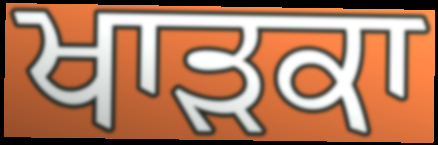
ਖਾੜਕਾ